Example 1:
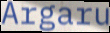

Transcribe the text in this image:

Argaru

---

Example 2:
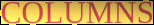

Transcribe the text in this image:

COLUMNS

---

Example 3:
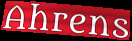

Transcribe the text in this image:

Ahrens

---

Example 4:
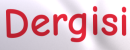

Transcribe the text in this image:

Dergisi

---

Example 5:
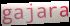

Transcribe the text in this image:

gajara